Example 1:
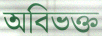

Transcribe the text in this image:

অবিভক্ত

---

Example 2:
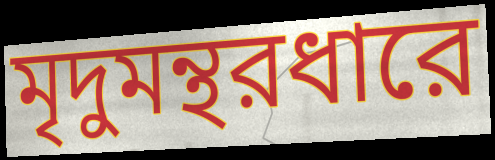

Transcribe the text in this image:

মৃদুমন্থরধারে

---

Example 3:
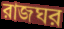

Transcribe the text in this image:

রাজঘর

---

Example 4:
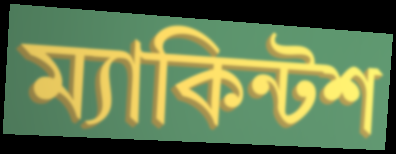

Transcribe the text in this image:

ম্যাকিন্টশ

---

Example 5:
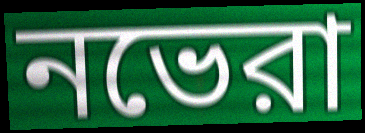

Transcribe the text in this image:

নভেরা